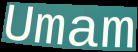
Umam